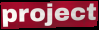
project